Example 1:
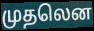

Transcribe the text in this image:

முதலென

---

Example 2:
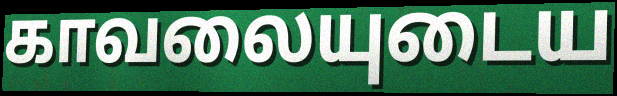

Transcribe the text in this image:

காவலையுடைய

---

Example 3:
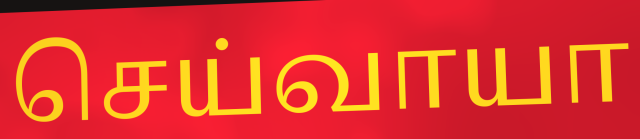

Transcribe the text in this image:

செய்வாயா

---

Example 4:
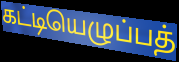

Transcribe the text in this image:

கட்டியெழுப்பத்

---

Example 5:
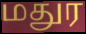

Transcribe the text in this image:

மதுர